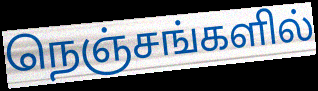
நெஞ்சங்களில்